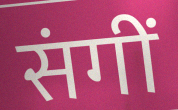
संगीं